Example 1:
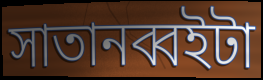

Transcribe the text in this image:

সাতানব্বইটা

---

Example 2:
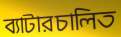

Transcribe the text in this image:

ব্যাটারচালিত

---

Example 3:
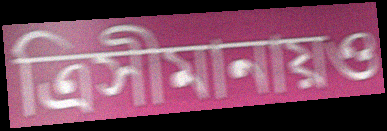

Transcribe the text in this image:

ত্রিসীমানায়ও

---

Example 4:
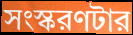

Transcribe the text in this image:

সংস্করণটার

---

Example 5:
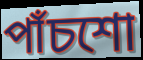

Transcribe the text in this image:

পাঁচশো